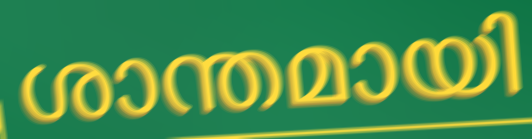
ശാന്തമായി